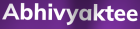
Abhivyaktee